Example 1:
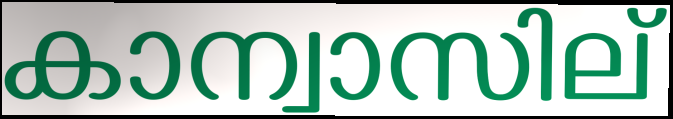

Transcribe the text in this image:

കാന്വാസില്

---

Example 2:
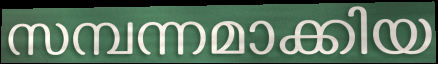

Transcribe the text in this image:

സമ്പന്നമാക്കിയ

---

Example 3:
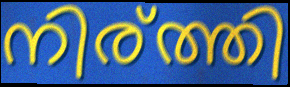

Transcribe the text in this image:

നിര്ത്തി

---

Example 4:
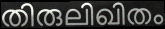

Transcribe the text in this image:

തിരുലിഖിതം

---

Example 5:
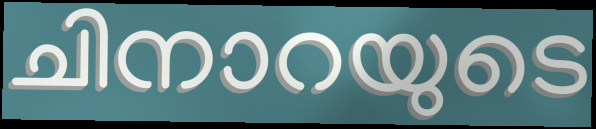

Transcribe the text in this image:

ചിനാറയുടെ